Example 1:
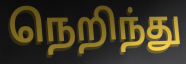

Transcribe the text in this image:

நெறிந்து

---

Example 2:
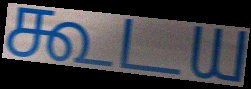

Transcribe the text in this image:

கூடய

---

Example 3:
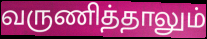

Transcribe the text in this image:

வருணித்தாலும்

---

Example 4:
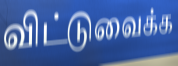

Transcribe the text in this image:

விட்டுவைக்க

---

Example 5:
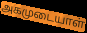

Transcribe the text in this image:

அகமுடையாள்